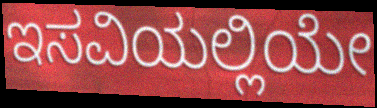
ಇಸವಿಯಲ್ಲಿಯೇ